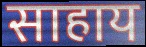
साहाय